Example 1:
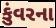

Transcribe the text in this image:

કુંવરના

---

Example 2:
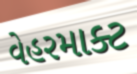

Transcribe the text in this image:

વેહરમાક્ટ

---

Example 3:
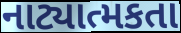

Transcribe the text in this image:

નાટ્યાત્મકતા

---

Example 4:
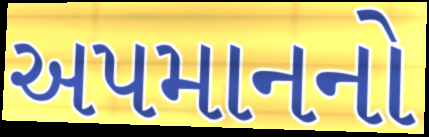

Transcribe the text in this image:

અપમાનનો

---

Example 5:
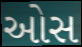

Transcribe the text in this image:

ઓસ